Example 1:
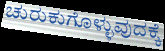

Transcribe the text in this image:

ಚುರುಕುಗೊಳ್ಳುವುದಕ್ಕೆ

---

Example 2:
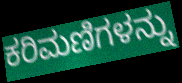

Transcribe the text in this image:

ಕರಿಮಣಿಗಳನ್ನು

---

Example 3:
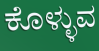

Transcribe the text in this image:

ಕೊಳ್ಳುವ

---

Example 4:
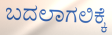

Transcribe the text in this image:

ಬದಲಾಗಲಿಕ್ಕೆ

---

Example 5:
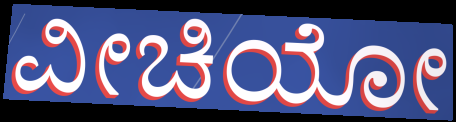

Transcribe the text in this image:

ವೀಚಿಯೋ